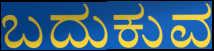
ಬದುಕುವ